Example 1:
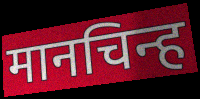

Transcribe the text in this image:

मानचिन्ह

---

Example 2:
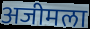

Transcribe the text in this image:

अजीमला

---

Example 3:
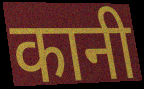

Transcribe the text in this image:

कानी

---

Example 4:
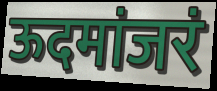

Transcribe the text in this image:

ऊदमांजरं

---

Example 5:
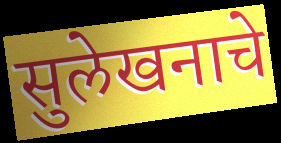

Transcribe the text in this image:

सुलेखनाचे